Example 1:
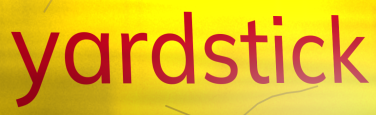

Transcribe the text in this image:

yardstick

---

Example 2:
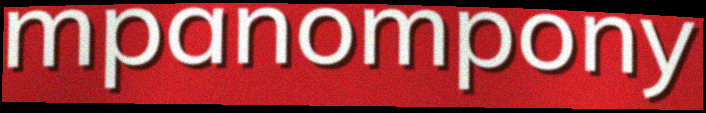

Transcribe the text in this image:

mpanompony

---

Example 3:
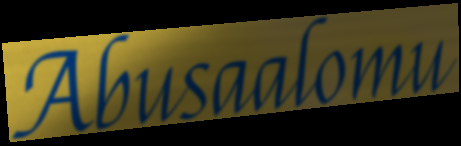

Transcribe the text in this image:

Abusaalomu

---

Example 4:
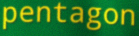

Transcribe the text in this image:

pentagon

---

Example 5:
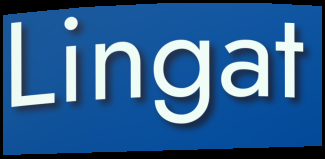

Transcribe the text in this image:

Lingat